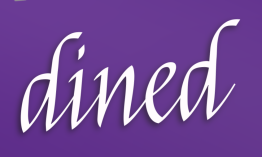
dined